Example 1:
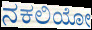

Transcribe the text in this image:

ನಕಲಿಯೋ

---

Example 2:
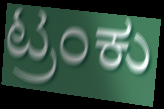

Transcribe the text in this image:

ಟ್ರಂಕು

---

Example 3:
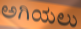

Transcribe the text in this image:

ಅಗಿಯಲು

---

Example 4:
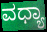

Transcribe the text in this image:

ವಧ್ಯಾ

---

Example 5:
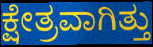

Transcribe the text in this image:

ಕ್ಷೇತ್ರವಾಗಿತ್ತು